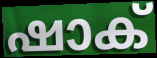
ഷാക്